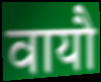
वायौ